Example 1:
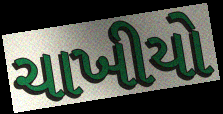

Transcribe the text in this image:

ચાખીયો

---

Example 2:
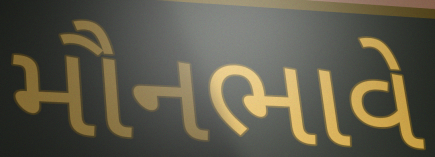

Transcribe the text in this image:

મૌનભાવે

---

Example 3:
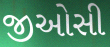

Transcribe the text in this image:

જીઓસી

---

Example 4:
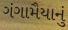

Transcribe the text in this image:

ગંગામૈયાનું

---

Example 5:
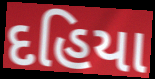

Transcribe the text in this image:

દહિયા